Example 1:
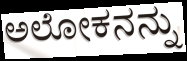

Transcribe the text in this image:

ಅಲೋಕನನ್ನು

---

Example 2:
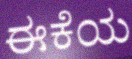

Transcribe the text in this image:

ಈಕೆಯ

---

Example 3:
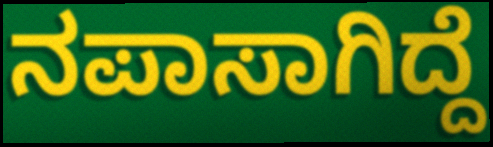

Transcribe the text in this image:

ನಪಾಸಾಗಿದ್ದೆ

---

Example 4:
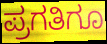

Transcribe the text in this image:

ಪ್ರಗತಿಗೂ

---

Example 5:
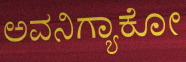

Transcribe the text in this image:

ಅವನಿಗ್ಯಾಕೋ